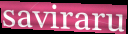
saviraru